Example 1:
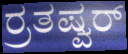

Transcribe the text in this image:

ರ್ರತಷ್ವರ್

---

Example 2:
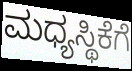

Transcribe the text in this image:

ಮಧ್ಯಸ್ಥಿಕೆಗೆ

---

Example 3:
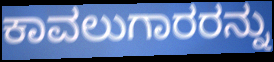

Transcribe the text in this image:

ಕಾವಲುಗಾರರನ್ನು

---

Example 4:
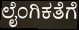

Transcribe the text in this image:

ಲೈಂಗಿಕತೆಗೆ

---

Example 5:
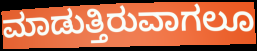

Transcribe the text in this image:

ಮಾಡುತ್ತಿರುವಾಗಲೂ